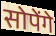
सोपेंगे